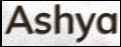
Ashya